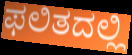
ಫಲಿತದಲ್ಲಿ